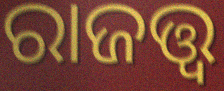
ରାଜତ୍ତ୍ୱ